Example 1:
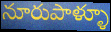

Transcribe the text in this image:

నూరుపాళ్ళూ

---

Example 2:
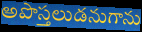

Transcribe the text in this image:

అపొస్తలుడనుగాను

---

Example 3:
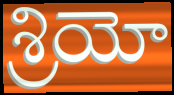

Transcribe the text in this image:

శ్రియో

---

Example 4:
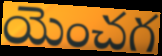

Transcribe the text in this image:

యెంచగ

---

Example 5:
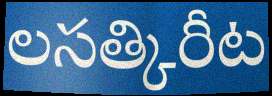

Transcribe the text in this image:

లసత్కిరీట